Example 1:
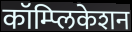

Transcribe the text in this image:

कॉम्प्लिकेशन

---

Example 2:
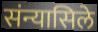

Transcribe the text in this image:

संन्यासिले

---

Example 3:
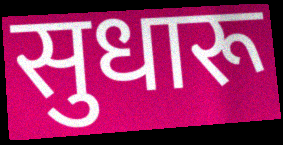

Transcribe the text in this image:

सुधारू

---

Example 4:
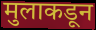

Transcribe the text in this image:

मुलाकडून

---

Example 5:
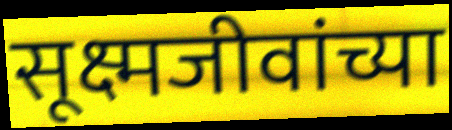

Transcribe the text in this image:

सूक्ष्मजीवांच्या